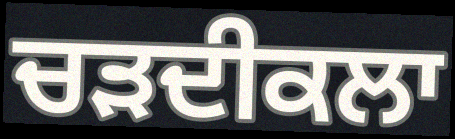
ਚੜਦੀਕਲਾ